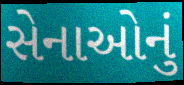
સેનાઓનું